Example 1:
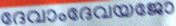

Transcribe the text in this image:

ദേവാംദേവയജോ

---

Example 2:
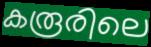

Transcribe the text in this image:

കരൂരിലെ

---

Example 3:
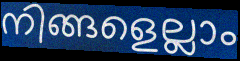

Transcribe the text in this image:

നിങ്ങളെല്ലാം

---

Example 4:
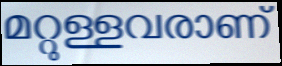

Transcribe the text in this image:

മറ്റുള്ളവരാണ്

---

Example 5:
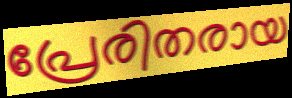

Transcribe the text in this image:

പ്രേരിതരായ